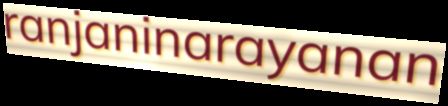
ranjaninarayanan